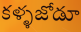
కళ్ళజోడూ